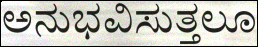
ಅನುಭವಿಸುತ್ತಲೂ